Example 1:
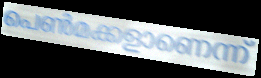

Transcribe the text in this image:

പെൺമക്കളാണെന്ന്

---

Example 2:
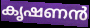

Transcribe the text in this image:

കൃഷണൻ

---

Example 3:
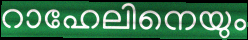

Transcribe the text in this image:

റാഹേലിനെയും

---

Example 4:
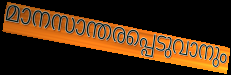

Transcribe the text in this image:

മാനസാന്തരപ്പെടുവാനും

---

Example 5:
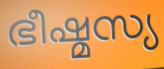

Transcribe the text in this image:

ഭീഷ്മസ്യ